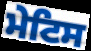
ਮੇਟਿਸ